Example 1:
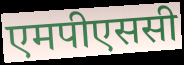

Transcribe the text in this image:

एमपीएससी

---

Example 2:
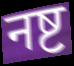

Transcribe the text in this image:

नष्ट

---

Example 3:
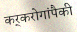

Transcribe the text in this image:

कर्करोगांपैकी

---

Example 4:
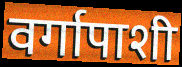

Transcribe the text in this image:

वर्गापाशी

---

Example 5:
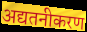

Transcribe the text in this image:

अद्यतनीकरण